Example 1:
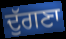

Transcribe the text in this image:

ਦੁੱਗਣਾ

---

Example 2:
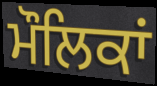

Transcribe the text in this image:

ਮੌਲਿਕਾਂ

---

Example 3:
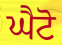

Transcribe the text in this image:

ਘੈਟੋ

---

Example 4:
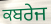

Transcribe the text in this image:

ਕਬਰੇਜ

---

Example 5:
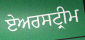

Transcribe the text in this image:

ਏਅਰਸਟ੍ਰੀਮ